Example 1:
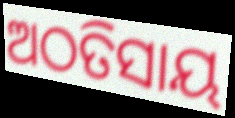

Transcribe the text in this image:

ଅଠତିସାୟ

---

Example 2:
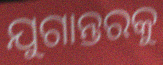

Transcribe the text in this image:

ଯୁଗାନ୍ତରକୁ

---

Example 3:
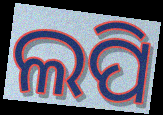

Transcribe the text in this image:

ଲପି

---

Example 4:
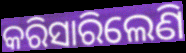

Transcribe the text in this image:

କରିସାରିଲେଣି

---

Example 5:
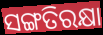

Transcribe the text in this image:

ସଙ୍ଗତିରକ୍ଷା